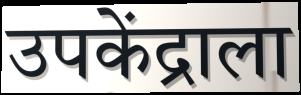
उपकेंद्राला